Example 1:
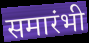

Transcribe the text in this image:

समारंभी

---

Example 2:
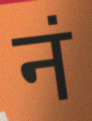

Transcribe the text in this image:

नं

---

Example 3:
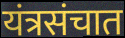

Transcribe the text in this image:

यंत्रसंचात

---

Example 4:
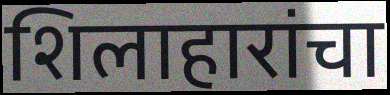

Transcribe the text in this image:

शिलाहारांचा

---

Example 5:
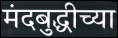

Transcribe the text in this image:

मंदबुद्धीच्या